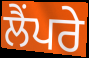
ਲੈਂਪਰੇ